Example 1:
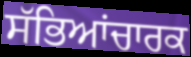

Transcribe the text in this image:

ਸੱਭਿਆਂਚਾਰਕ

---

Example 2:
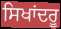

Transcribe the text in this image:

ਸਿਖਾਂਦਰੂ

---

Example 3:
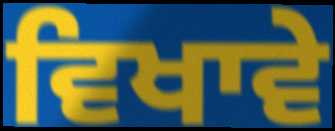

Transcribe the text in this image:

ਵਿਖਾਵੇ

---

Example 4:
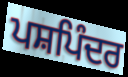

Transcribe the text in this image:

ਪਸ਼ਪਿੰਦਰ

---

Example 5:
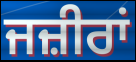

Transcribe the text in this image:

ਜਜ਼ੀਰਾਂ